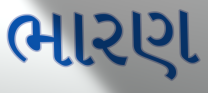
ભારણ